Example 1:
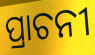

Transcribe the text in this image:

ପ୍ରାଚନୀ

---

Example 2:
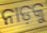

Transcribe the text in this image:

ନାଡ଼କୁ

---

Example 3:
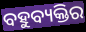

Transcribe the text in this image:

ବହୁବ୍ୟକ୍ତିର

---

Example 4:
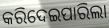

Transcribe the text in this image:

କରିଦେଇପାରିଲା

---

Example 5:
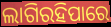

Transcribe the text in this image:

ଲାଗିରହିପାରେ